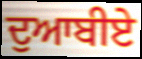
ਦੁਆਬੀਏ